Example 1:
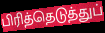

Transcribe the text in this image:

பிரித்தெடுத்துப்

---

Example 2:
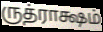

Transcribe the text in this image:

ருத்ராக்ஷம்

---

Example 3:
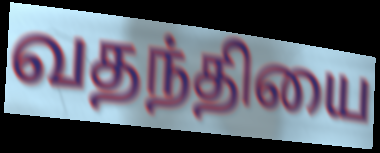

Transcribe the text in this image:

வதந்தியை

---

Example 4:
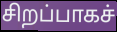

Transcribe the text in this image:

சிறப்பாகச்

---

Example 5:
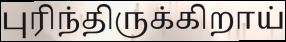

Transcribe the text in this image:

புரிந்திருக்கிறாய்